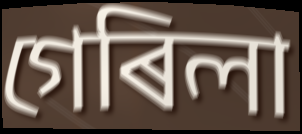
গেৰিলা